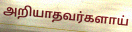
அறியாதவர்களாய்